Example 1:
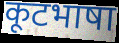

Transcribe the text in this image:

कूटभाषा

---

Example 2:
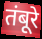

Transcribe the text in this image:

तंबूरे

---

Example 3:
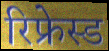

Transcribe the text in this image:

रिफ्रेस्ड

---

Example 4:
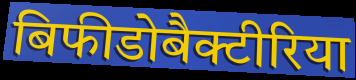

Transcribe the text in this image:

बिफीडोबैक्टीरिया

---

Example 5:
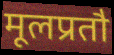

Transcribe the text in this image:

मूलप्रतौ